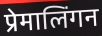
प्रेमालिंगन